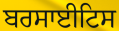
ਬਰਸਾਈਟਿਸ